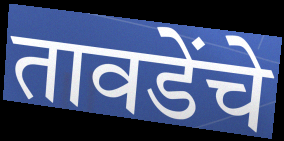
तावडेंचे